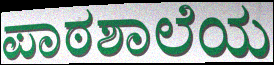
ಪಾಠಶಾಲೆಯ